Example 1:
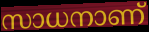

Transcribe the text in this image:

സാധനാണ്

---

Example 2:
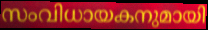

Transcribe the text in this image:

സംവിധായകനുമായി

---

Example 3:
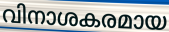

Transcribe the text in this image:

വിനാശകരമായ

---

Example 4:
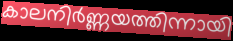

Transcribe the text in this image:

കാലനിർണ്ണയത്തിന്നായി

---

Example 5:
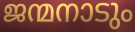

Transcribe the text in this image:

ജന്മനാടും